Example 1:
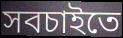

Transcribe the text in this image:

সবচাইতে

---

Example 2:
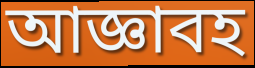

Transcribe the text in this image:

আজ্ঞাবহ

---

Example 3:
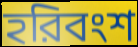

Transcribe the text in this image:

হরিবংশ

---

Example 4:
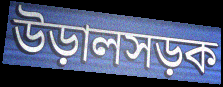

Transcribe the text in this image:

উড়ালসড়ক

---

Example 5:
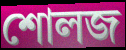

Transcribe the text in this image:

শোলজ